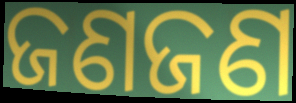
ଜଣଜଣ